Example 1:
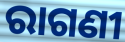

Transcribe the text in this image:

ରାଗଣୀ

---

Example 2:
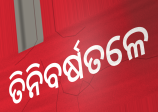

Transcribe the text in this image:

ତିନିବର୍ଷତଳେ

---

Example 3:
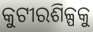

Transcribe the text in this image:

କୁଟୀରଶିଳ୍ପକୁ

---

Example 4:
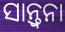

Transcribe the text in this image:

ସାନ୍ତ୍ୱନା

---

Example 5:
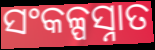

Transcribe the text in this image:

ସଂକଳ୍ପସ୍ନାତ